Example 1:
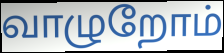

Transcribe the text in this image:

வாழுறோம்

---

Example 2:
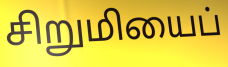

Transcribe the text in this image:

சிறுமியைப்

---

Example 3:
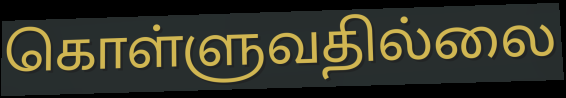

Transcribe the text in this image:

கொள்ளுவதில்லை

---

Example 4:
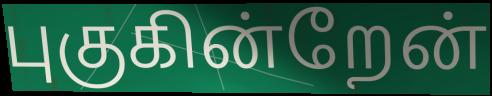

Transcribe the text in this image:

புகுகின்றேன்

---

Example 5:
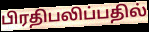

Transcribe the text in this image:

பிரதிபலிப்பதில்